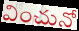
వించునో